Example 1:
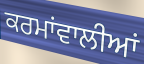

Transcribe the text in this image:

ਕਰਮਾਂਵਾਲੀਆਂ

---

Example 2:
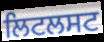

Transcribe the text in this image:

ਲਿਟਲਸਟ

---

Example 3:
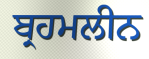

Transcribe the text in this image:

ਬ੍ਰਹਮਲੀਨ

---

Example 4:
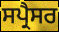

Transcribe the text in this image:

ਸਪ੍ਰੈਸਰ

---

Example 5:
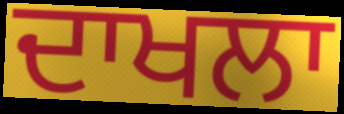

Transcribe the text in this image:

ਦਾਖਲਾ